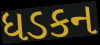
ધડકન